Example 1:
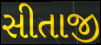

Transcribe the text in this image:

સીતાજી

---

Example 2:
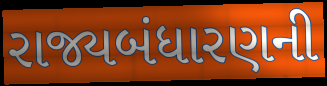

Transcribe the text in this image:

રાજ્યબંધારણની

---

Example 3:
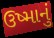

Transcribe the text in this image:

ઉષ્માનું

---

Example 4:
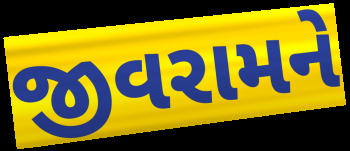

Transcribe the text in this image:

જીવરામને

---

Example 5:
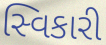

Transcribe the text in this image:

સ્વિકારી